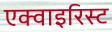
एक्वाइरिस्ट